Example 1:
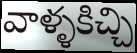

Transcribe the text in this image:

వాళ్ళకిచ్చి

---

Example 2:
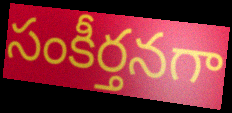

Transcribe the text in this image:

సంకీర్తనగా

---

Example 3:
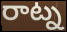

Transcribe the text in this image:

రాట్న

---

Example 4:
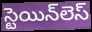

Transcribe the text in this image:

స్టెయిన్‌లెస్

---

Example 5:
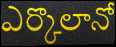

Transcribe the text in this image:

ఎర్కొలానో